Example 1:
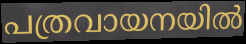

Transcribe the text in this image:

പത്രവായനയിൽ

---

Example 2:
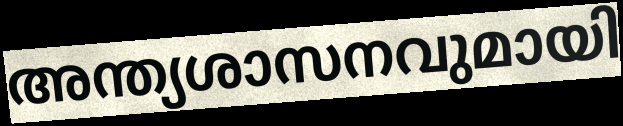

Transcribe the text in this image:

അന്ത്യശാസനവുമായി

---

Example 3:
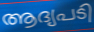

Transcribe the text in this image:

ആദ്യപടി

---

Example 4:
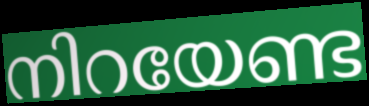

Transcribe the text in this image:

നിറയേണ്ട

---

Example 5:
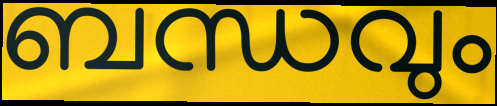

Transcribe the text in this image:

ബന്ധവും